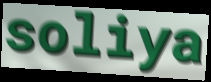
soliya